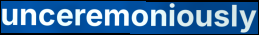
unceremoniously